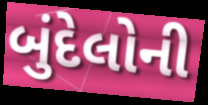
બુંદેલોની